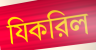
যিকরিল